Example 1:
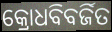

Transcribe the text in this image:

କ୍ରୋଧବିବର୍ଜିତ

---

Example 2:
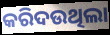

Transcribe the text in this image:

କରିଦଉଥିଲା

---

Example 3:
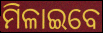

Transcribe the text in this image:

ମିଳାଇବେ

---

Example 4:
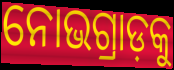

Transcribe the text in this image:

ନୋଭଗ୍ରାଡ଼କୁ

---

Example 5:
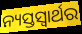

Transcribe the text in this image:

ନ୍ୟସ୍ତସ୍ଵାର୍ଥର